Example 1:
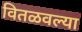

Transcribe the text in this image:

वितळवल्या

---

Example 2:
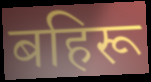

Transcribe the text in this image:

बहिरू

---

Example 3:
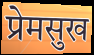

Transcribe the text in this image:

प्रेमसुख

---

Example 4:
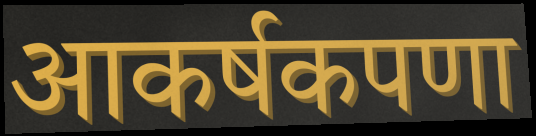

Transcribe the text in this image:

आकर्षकपणा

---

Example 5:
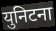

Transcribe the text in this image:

युनिटना